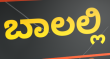
ಬಾಲಲ್ಲಿ